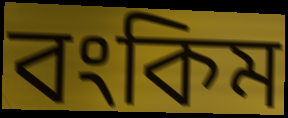
বংকিম